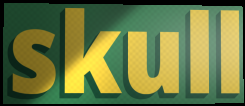
skull